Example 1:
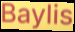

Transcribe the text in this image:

Baylis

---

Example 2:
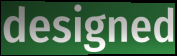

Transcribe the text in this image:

designed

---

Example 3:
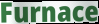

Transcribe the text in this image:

Furnace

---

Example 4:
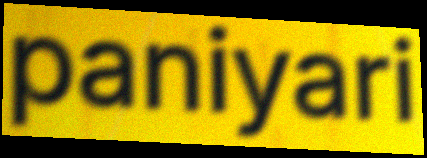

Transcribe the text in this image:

paniyari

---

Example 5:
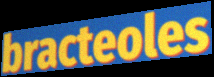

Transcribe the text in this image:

bracteoles